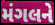
મંગલને